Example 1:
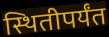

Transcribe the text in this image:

स्थितीपर्यंत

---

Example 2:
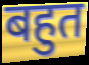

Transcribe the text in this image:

बहुत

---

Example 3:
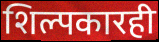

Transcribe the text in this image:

शिल्पकारही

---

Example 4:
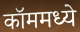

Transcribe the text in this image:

कॉममध्ये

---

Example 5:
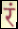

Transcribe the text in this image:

रं